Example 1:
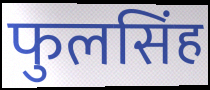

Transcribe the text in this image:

फुलसिंह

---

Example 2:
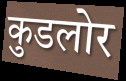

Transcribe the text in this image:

कुडलोर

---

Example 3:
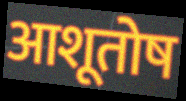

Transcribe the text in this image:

आशूतोष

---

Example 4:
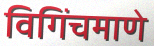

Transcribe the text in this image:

विगिंचमाणे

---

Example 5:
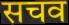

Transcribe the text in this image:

सचव